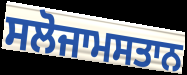
ਸਲੋਜਾਮਸਤਾਨ